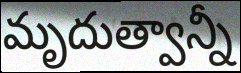
మృదుత్వాన్నీ